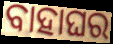
ବାହାଘର